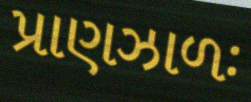
પ્રાણઝાળઃ